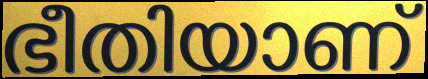
ഭീതിയാണ്